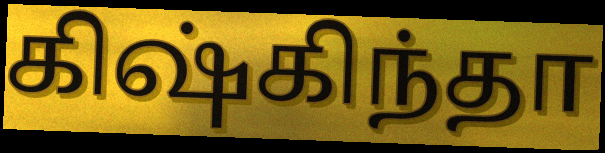
கிஷ்கிந்தா